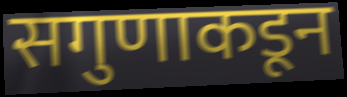
सगुणाकडून